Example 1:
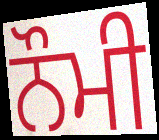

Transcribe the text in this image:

ਨੌਮੀ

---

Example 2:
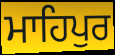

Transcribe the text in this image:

ਮਾਹਿਪੁਰ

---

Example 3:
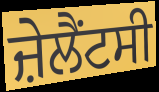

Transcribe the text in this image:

ਜ਼ੇਲੈਂਟਸੀ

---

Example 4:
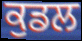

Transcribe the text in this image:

ਕੁਡਲ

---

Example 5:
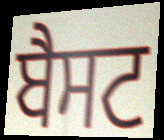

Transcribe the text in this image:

ਬੈਸਟ